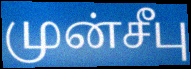
முன்சீபு